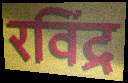
रविंद्र